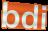
bdi